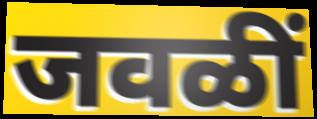
जवळीं